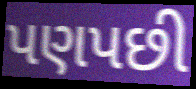
પણપછી